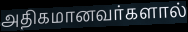
அதிகமானவர்களால்